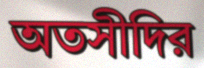
অতসীদির